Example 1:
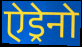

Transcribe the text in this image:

ऐड्रेनो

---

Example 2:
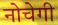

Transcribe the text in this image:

नोचेगी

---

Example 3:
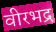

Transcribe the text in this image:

वीरभद्र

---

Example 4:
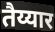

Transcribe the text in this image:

तैय्यार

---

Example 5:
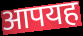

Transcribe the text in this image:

आपयह